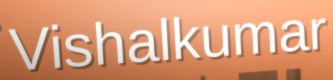
Vishalkumar